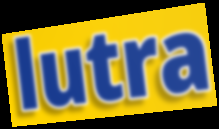
lutra